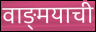
वाङ्मयाची